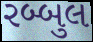
રબ્બુલ